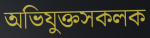
অভিযুক্তসকলক